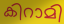
കിറാമി